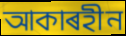
আকাৰহীন